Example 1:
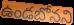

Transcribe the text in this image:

ఉండబోనని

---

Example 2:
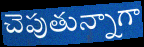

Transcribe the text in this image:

చెపుతున్నాగా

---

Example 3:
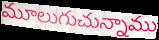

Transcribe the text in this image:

మూలుగుచున్నాము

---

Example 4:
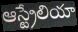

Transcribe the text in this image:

ఆస్ట్రేలియా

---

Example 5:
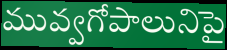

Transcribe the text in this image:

మువ్వగోపాలునిపై